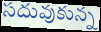
సదువుకున్న